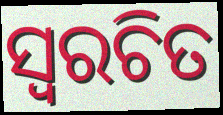
ସ୍ୱରଚିତ